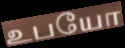
உபயோ